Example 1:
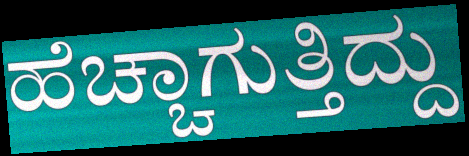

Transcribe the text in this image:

ಹೆಚ್ಚಾಗುತ್ತಿದ್ದು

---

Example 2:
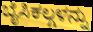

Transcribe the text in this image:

ಬೈಸಿಕಲ್ಗಳನ್ನು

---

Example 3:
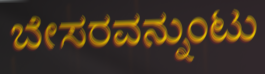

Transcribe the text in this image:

ಬೇಸರವನ್ನುಂಟು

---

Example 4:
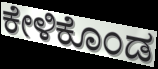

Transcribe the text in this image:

ಕೇಳಿಕೊಂಡ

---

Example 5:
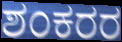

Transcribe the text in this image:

ಶಂಕರರ